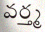
వర్త్మ